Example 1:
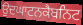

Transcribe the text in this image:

ਉਦਘਾਟਨਕੈਬਨਿਟ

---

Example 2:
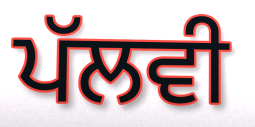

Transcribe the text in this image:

ਪੱਲਵੀ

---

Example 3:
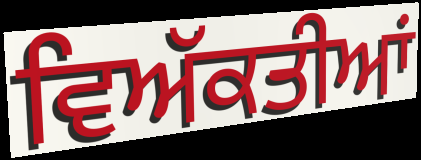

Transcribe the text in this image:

ਵਿਅੱਕਤੀਆਂ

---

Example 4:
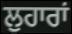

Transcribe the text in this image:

ਲੁਹਾਰਾਂ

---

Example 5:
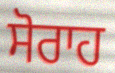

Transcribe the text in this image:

ਸੋਰਾਹ